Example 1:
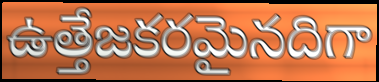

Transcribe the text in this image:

ఉత్తేజకరమైనదిగా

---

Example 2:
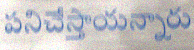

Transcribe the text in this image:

పనిచేస్తాయన్నారు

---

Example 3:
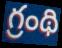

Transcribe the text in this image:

గ్రంథి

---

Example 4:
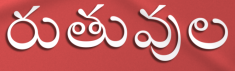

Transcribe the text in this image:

రుతువుల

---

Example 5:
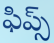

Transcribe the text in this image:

ఫిప్స్